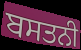
ਬਸਤਨੀ